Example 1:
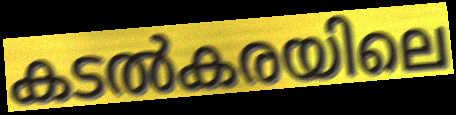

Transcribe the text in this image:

കടൽകരയിലെ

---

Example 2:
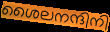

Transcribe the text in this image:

ശൈലനന്ദിനി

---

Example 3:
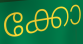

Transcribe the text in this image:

ക്കോ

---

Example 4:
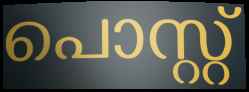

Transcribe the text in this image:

പൊസ്റ്റ്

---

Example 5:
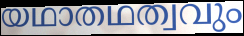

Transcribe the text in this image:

യഥാതഥത്വവും